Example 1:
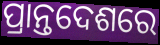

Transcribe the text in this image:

ପ୍ରାନ୍ତଦେଶରେ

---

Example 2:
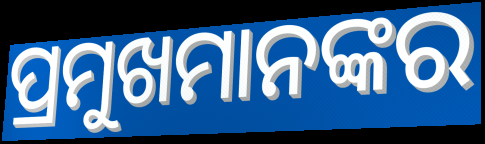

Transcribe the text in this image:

ପ୍ରମୁଖମାନଙ୍କର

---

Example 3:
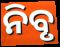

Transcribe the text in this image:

ନିବୃ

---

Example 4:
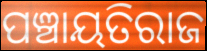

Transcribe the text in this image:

ପଞ୍ଚାୟତିରାଜ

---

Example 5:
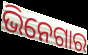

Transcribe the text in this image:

ଭିନେଗାର